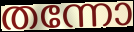
തന്നോ